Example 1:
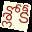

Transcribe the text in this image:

శ్లోకీ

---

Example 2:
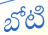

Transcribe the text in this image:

బోటి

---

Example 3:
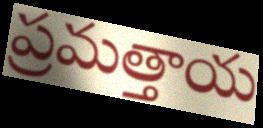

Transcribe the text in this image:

ప్రమత్తాయ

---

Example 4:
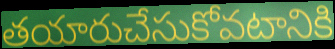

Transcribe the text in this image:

తయారుచేసుకోవటానికి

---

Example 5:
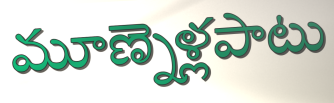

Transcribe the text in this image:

మూణ్నెళ్లపాటు